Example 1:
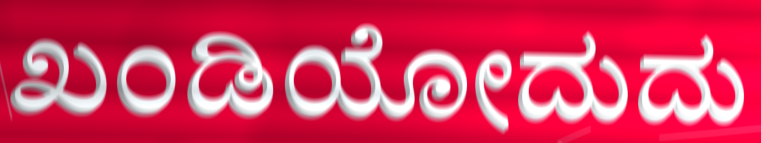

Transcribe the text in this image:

ಖಂಡಿಯೋದುದು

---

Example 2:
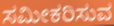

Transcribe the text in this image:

ಸಮೀಕರಿಸುವ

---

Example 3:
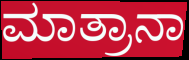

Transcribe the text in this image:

ಮಾತ್ರಾನಾ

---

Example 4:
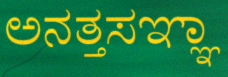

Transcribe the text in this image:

ಅನತ್ತಸಞ್ಞಾ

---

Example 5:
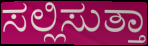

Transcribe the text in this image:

ಸಲ್ಲಿಸುತ್ತಾ